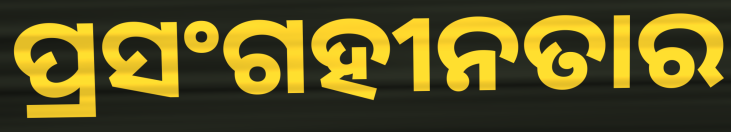
ପ୍ରସଂଗହୀନତାର